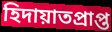
হিদায়াতপ্রাপ্ত